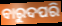
ବାରୁଦପରି